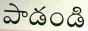
పాడండి